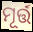
ମୂର୍ତ୍ତ